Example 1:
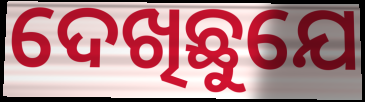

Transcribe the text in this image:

ଦେଖିଛୁଯେ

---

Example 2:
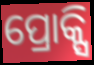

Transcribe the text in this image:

ପ୍ରୋକ୍ସି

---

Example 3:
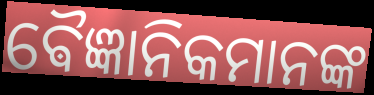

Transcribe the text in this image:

ଵୈଜ୍ଞାନିକମାନଙ୍କ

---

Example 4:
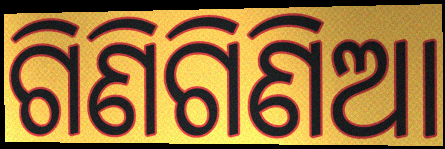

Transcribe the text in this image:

ଗିଣିଗିଣିଆ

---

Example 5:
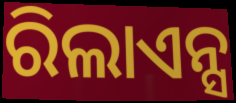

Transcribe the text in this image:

ରିଲାଏନ୍ସ